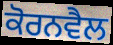
ਕੋਰਨਵੈਲ